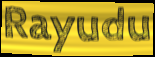
Rayudu